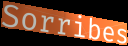
Sorribes